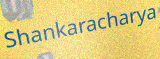
Shankaracharya